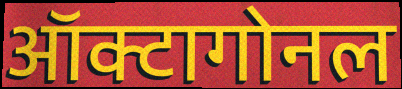
ऑक्टागोनल